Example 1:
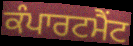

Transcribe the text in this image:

ਕੰਪਾਰਟਮੈਂਟ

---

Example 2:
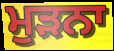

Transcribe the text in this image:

ਮੁਡ਼ਨਾ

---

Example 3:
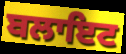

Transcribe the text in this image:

ਬਲਾਇਟ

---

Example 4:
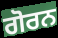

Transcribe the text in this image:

ਗੋਰਨ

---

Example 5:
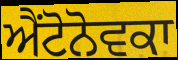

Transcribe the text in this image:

ਐਂਟੋਨੋਵਕਾ